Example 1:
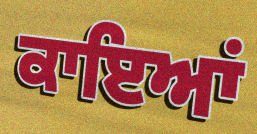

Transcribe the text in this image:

ਕਾਇਆਂ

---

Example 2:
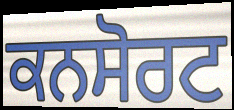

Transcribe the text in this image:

ਕਨਸੋਰਟ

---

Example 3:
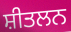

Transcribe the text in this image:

ਸ਼ੀਤਲਨ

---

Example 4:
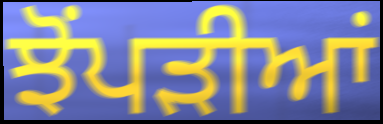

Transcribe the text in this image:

ਝੋਂਪੜੀਆਂ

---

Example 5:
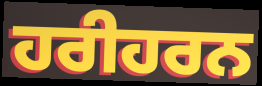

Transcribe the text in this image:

ਹਰੀਹਰਨ